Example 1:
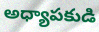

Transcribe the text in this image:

అధ్యాపకుడి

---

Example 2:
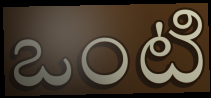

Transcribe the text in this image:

ఒంటి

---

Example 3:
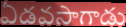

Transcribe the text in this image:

ఏడవసాగాడు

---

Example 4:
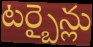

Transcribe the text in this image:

టర్బైన్లు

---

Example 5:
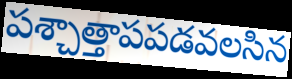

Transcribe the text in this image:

పశ్చాత్తాపపడవలసిన